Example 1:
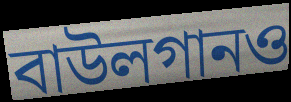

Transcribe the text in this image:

বাউলগানও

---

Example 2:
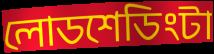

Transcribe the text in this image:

লোডশেডিংটা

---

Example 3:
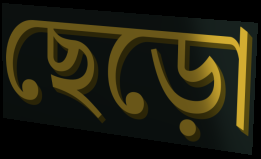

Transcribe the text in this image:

ছেড়ো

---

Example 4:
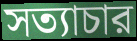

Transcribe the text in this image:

সত্যাচার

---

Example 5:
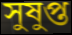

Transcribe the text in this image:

সুষুপ্ত